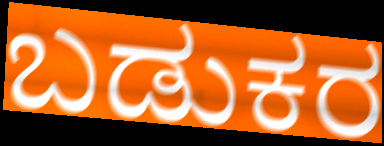
ಬಡುಕರ